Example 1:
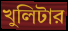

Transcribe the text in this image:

খুলিটার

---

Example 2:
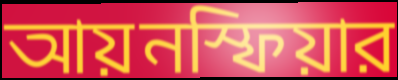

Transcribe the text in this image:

আয়নস্ফিয়ার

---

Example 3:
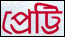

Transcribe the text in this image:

প্রেট্টি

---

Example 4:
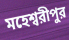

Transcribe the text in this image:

মহেশ্বরীপুর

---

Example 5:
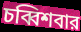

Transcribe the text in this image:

চব্বিশবার